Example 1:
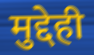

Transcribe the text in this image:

मुद्देही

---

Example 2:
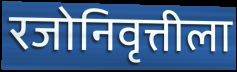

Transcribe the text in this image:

रजोनिवृत्तीला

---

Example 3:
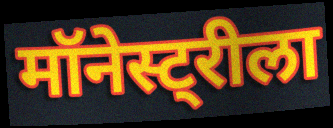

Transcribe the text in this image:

मॉनेस्ट्रीला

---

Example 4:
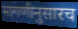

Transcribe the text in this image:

मागणीनुसारच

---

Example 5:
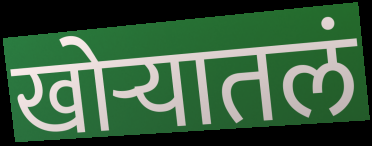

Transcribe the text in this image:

खोऱ्यातलं